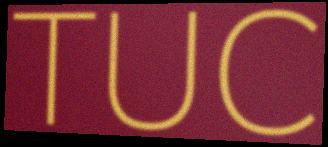
TUC